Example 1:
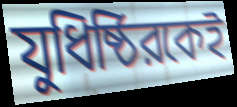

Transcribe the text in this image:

যুধিষ্ঠিরকেই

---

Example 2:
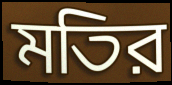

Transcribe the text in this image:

মতির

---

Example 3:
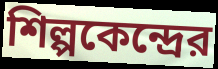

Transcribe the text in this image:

শিল্পকেন্দ্রের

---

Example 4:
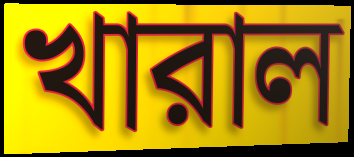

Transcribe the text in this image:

খারাল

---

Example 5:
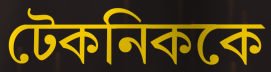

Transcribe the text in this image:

টেকনিককে